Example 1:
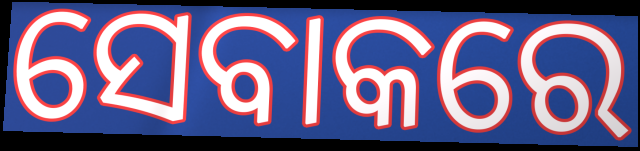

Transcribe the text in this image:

ସେବାକରେ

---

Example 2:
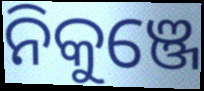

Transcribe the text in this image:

ନିକୁଞ୍ଜେ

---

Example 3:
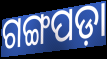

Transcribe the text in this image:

ଗଙ୍ଗପଡ଼ା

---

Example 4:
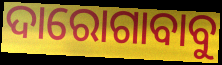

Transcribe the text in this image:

ଦାରୋଗାବାବୁ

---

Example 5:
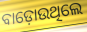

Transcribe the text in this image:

ବାଡ଼ୋଉଥିଲେ